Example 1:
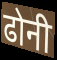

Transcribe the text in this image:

ढोनी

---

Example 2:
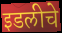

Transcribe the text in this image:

इडलीचे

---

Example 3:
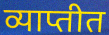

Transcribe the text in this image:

व्याप्तीत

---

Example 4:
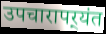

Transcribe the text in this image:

उपचारापर्यंत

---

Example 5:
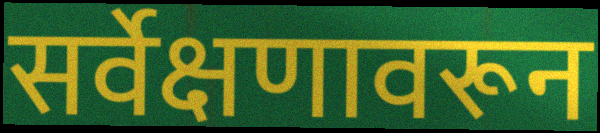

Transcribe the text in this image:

सर्वेक्षणावरून